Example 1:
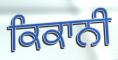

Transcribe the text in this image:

ਕਿਕਾਨੀ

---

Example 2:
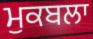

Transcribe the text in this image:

ਮੁਕਬਲਾ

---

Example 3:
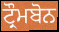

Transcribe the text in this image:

ਟ੍ਰੌਮਬੋਨ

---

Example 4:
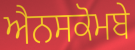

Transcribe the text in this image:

ਐਨਸਕੋਮਬੇ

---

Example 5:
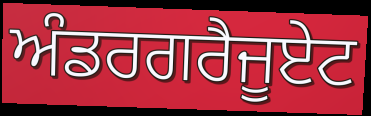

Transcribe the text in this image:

ਅੰਡਰਗਰੈਜੂਏਟ